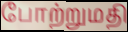
போற்றுமதி